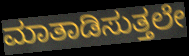
ಮಾತಾಡಿಸುತ್ತಲೇ